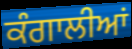
ਕੰਗਾਲੀਆਂ